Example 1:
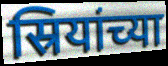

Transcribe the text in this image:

स्रियांच्या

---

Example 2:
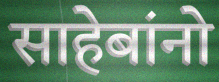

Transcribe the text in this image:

साहेबांनो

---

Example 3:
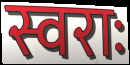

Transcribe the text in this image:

स्वराः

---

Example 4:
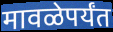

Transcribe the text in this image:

मावळेपर्यंत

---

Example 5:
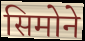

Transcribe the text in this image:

सिमोने